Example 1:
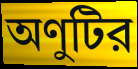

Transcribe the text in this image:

অণুটির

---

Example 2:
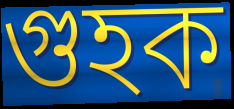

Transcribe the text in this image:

গুহক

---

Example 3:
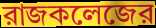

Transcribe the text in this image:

রাজকলেজের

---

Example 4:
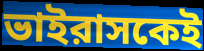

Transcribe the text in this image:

ভাইরাসকেই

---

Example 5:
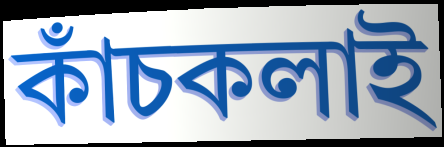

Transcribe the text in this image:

কাঁচকলাই